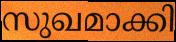
സുഖമാക്കി